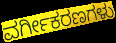
ವರ್ಗೀಕರಣಗಳು